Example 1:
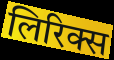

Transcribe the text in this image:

लिरिक्स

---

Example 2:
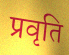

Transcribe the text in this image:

प्रवृति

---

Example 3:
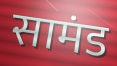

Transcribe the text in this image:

सामंड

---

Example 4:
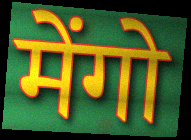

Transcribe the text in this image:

मेंगो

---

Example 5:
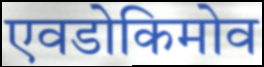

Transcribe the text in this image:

एवडोकिमोव